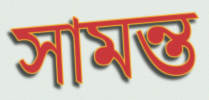
সামন্ত